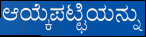
ಆಯ್ಕೆಪಟ್ಟಿಯನ್ನು